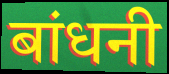
बांधनी